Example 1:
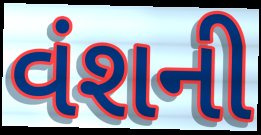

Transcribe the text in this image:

વંશની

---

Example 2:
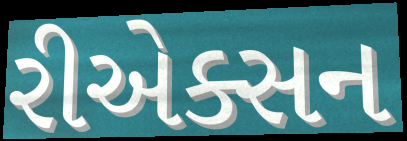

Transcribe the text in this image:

રીએક્સન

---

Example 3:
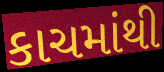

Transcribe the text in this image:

કાચમાંથી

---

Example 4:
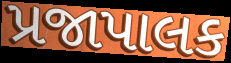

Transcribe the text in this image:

પ્રજાપાલક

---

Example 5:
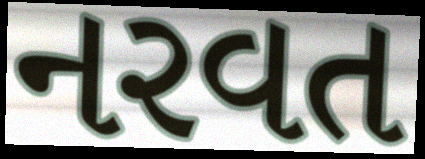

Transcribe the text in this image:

નરવત